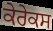
ਕੇਰੇਕਸ